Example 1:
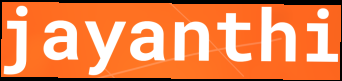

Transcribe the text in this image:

jayanthi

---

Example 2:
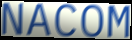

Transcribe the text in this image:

NACOM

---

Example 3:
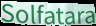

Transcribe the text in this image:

Solfatara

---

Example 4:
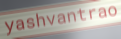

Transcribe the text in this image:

yashvantrao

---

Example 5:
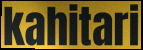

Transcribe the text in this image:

kahitari